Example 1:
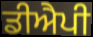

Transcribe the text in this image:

ਡੀਐਪੀ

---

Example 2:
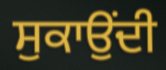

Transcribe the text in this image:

ਸੁਕਾਉਂਦੀ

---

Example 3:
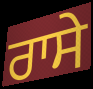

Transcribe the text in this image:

ਰਾਸੇ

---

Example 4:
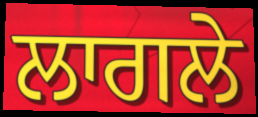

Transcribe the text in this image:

ਲਾਗਲੇ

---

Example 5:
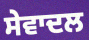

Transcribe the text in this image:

ਸੇਵਾਦਲ